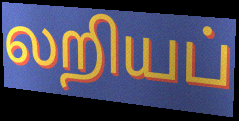
லறியப்